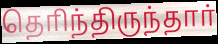
தெரிந்திருந்தார்